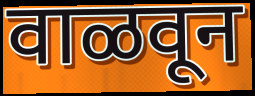
वाळवून